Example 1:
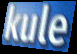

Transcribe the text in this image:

kule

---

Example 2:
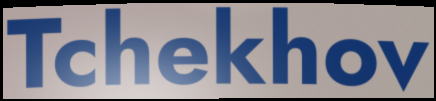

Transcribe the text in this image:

Tchekhov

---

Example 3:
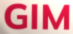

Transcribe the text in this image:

GIM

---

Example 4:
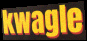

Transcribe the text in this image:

kwagle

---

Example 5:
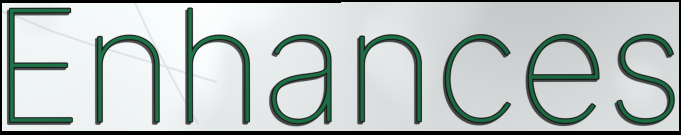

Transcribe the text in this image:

Enhances